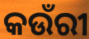
କଉଁରୀ